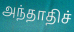
அந்தாதிச்